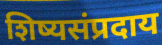
शिष्यसंप्रदाय